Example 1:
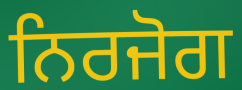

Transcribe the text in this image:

ਨਿਰਜੋਗ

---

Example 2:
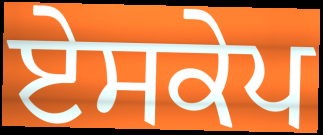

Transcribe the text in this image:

ਏਸਕੇਪ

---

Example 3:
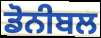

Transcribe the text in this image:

ਡੋਨੀਬਲ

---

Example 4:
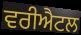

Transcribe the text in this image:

ਵਰੀਐਟਲ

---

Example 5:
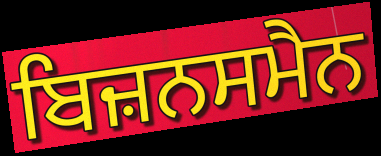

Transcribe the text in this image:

ਬਿਜ਼ਨਸਮੈਨ